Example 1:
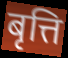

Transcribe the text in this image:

बृत्ति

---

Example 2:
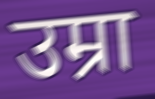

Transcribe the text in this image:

उम्रा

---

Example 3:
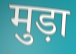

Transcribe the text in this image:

मुड़ा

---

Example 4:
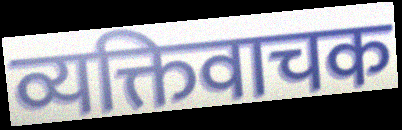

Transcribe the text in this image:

व्यक्तिवाचक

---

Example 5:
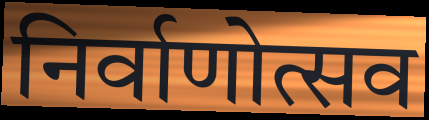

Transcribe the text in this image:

निर्वाणोत्सव